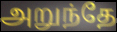
அறுந்தே